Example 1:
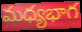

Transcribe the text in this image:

మధ్యభాగ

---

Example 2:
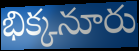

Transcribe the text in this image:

భిక్కనూరు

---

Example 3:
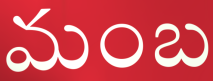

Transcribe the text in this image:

మంబ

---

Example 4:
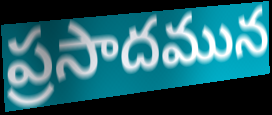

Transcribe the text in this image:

ప్రసాదమున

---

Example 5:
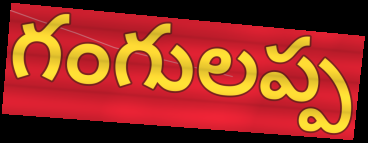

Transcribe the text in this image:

గంగులప్ప